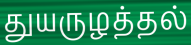
துயருழத்தல்